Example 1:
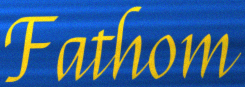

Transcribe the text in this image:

Fathom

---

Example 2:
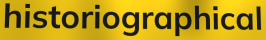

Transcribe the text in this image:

historiographical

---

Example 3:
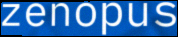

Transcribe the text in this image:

zenopus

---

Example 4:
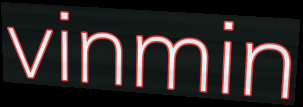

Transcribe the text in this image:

vinmin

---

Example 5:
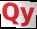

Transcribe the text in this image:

Qy